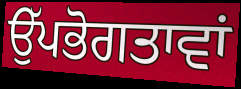
ਉੱਪਭੋਗਤਾਵਾਂ